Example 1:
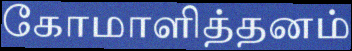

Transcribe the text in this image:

கோமாளித்தனம்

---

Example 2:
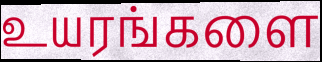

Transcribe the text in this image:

உயரங்களை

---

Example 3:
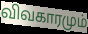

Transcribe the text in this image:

விவகாரமும்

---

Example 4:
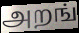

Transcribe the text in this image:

அறங்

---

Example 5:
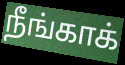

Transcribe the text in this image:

நீங்காக்